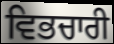
ਵਿਭਚਾਰੀ